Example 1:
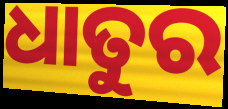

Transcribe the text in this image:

ଧାତୁର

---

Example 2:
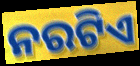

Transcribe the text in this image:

ନରଟିଏ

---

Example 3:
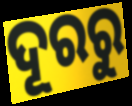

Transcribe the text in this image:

ଦୂରରୁ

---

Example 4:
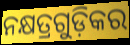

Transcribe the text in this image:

ନକ୍ଷତ୍ରଗୁଡ଼ିକର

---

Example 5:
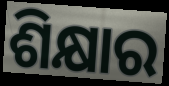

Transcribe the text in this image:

ଶିକ୍ଷାର